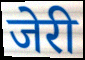
जेरी